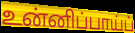
உன்னிப்பாய்ப்